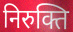
निरुक्ति